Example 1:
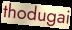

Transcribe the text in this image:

thodugai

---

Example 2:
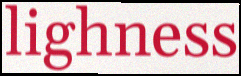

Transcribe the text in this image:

lighness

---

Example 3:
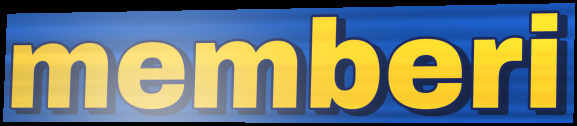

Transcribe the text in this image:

memberi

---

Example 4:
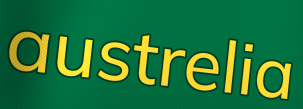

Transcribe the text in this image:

austrelia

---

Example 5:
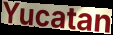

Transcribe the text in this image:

Yucatan